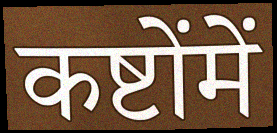
कष्टोंमें